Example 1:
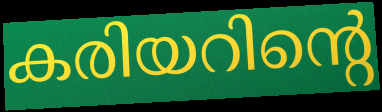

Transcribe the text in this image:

കരിയറിന്റെ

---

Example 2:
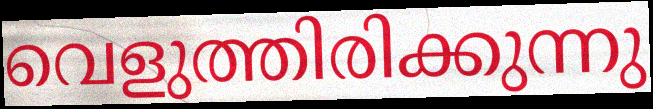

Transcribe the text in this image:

വെളുത്തിരിക്കുന്നു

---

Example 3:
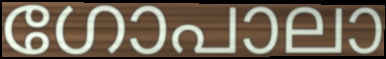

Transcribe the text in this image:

ഗോപാലാ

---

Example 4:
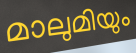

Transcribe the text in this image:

മാലുമിയും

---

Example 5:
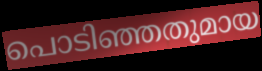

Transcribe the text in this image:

പൊടിഞ്ഞതുമായ